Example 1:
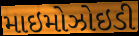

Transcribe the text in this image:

માઇમોઝોઇડી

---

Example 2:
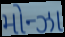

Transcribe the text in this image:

મોન્ઝા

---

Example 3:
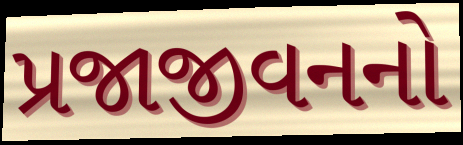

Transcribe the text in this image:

પ્રજાજીવનનો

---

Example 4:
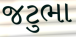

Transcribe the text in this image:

જટુભા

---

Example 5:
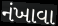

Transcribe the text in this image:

નંખાવા